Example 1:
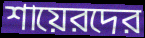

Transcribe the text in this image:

শায়েরদের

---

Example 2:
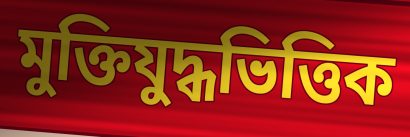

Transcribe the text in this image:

মুক্তিযুদ্ধভিত্তিক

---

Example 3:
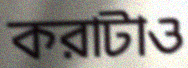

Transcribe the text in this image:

করাটাও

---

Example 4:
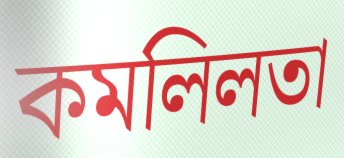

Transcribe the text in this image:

কমলিলতা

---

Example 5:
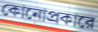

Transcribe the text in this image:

কোনোপ্রকারে